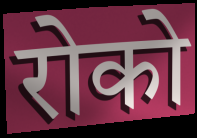
रोको